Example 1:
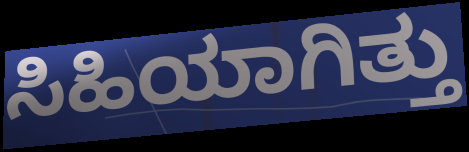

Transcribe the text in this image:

ಸಿಹಿಯಾಗಿತ್ತು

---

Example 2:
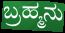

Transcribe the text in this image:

ಬ್ರಹ್ಮನು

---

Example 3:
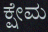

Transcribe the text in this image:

ಕ್ಷೇಮ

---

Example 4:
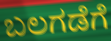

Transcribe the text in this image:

ಬಲಗಡೆಗೆ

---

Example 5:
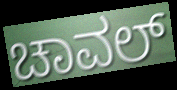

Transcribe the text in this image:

ಚಾವಲ್